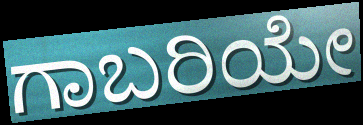
ಗಾಬರಿಯೇ